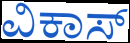
ವಿಕಾಸ್